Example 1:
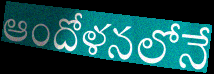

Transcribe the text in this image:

ఆందోళనలోనే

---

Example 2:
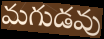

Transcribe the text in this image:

మగుడవు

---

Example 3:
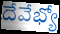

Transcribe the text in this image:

దేవేభ్యో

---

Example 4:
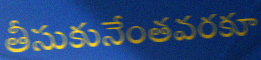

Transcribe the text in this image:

తీసుకునేంతవరకూ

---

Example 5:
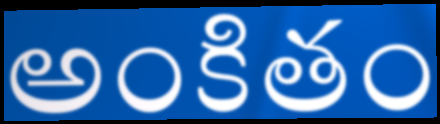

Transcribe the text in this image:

అంకితం